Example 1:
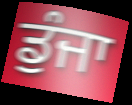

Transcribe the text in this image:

ਡੁੰਜਾ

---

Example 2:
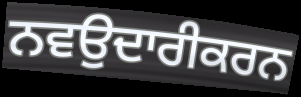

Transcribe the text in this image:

ਨਵਉਦਾਰੀਕਰਨ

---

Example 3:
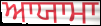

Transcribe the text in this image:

ਆਯਾਮਾ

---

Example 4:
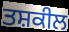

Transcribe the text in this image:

ਤਸ਼ਕੀਲ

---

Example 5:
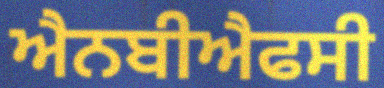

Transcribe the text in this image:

ਐਨਬੀਐਫਸੀ